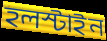
হলস্টাইন